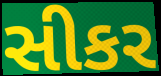
સીકર